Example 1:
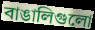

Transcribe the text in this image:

বাঙালিগুলো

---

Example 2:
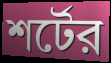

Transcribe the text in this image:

শর্টের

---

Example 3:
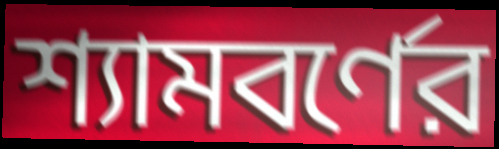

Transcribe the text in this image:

শ্যামবর্ণের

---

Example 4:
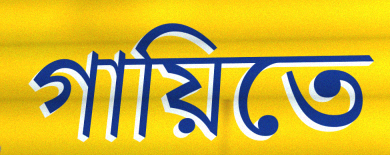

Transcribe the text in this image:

গায়িতে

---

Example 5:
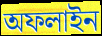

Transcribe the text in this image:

অফলাইন